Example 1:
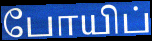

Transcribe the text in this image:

போயிப்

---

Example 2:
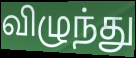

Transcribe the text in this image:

விழுந்து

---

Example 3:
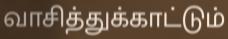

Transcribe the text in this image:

வாசித்துக்காட்டும்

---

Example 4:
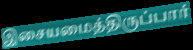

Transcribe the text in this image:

இசையமைத்திருப்பார்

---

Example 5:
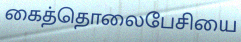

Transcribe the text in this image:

கைத்தொலைபேசியை